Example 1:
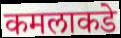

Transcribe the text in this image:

कमलाकडे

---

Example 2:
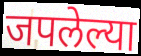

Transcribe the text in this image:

जपलेल्या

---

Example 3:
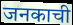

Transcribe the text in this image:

जनकाची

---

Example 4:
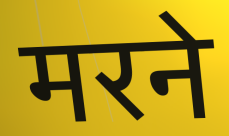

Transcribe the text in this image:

मरने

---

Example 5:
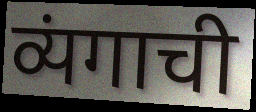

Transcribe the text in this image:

व्यंगाची